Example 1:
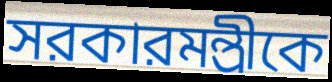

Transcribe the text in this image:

সরকারমন্ত্রীকে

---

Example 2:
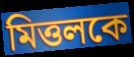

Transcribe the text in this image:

মিত্তলকে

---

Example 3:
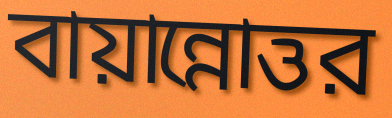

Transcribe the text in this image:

বায়ান্নোত্তর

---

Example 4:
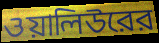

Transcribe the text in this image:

ওয়ালিউরের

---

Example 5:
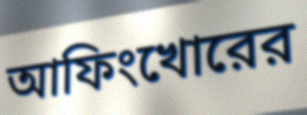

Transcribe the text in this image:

আফিংখোরের